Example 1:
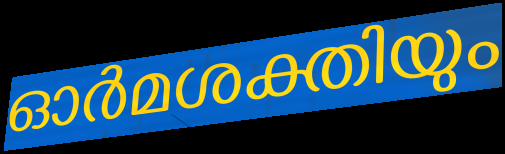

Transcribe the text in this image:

ഓർമശക്തിയും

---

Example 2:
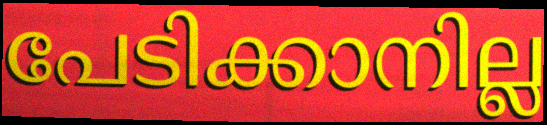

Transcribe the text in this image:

പേടിക്കാനില്ല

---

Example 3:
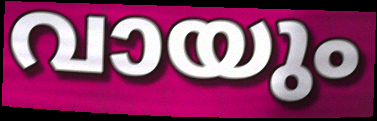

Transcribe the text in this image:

വായും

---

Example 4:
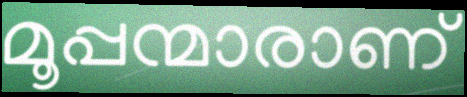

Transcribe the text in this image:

മൂപ്പന്മാരാണ്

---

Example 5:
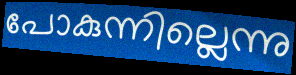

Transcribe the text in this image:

പോകുന്നില്ലെന്നു